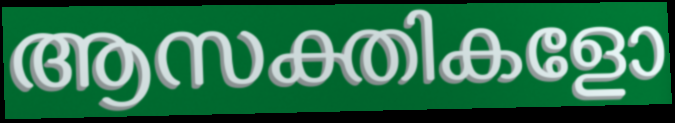
ആസക്തികളോ